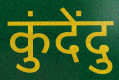
कुंदेंदु